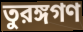
তুরঙ্গগণ